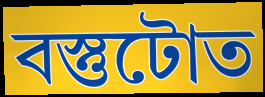
বস্তুটোত